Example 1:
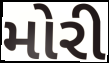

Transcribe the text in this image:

મોરી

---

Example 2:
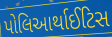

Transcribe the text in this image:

પોલિઆર્થાઈટિસ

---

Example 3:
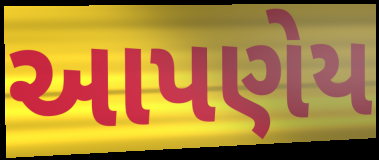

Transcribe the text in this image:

આપણેય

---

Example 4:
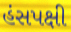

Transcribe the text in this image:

હંસપક્ષી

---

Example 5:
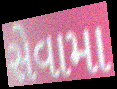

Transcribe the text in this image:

સેવામા